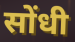
सोंधी